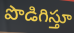
పొడిగిస్తూ